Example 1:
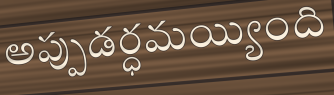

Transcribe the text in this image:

అప్పుడర్ధమయ్యింది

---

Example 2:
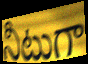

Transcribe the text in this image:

నీటుగా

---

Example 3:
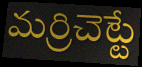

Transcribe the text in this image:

మర్రిచెట్టే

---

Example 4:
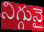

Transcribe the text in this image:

నిగ్గునై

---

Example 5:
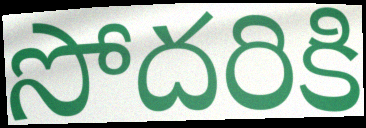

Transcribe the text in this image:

సోదరికి